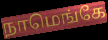
நாமெங்கே